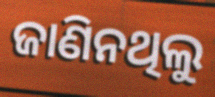
ଜାଣିନଥିଲୁ